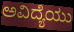
ಅವಿದ್ಯೆಯು